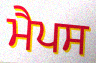
ਮੈਪਸ